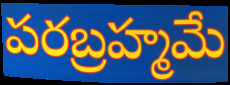
పరబ్రహ్మమే